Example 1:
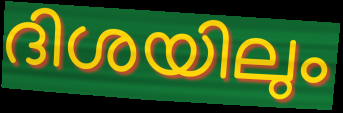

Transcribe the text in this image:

ദിശയിലും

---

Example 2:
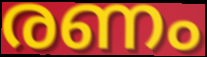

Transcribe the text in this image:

രണം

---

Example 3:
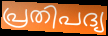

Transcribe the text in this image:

പ്രതിപദ്യ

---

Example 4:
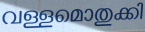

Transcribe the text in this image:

വള്ളമൊതുക്കി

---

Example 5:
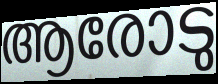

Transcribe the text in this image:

ആരോടു